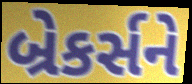
બ્રેકર્સને